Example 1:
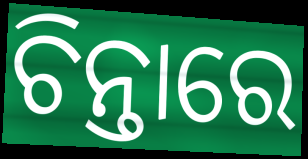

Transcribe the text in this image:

ଚିନ୍ତାରେ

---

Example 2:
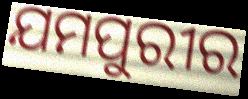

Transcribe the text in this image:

ଯମପୁରୀର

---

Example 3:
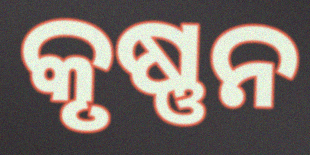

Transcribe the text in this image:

କୃଷ୍ଣନ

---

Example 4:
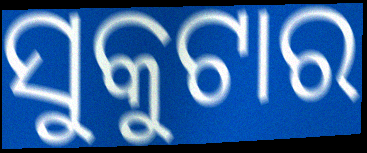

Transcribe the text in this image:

ସୁକୁଟାର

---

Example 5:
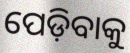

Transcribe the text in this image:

ପେଡ଼ିବାକୁ